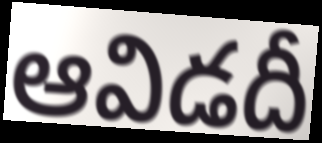
ఆవిడదీ